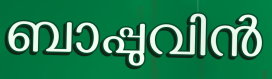
ബാപ്പുവിൻ